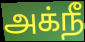
அக்நீ